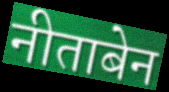
नीताबेन